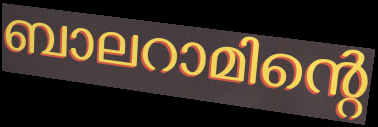
ബാലറാമിന്റെ